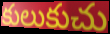
కులుకుచు